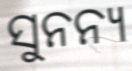
ସୁନନ୍ୟ